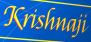
Krishnaji